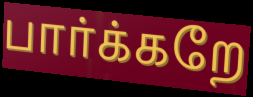
பார்க்கறே